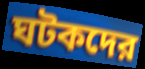
ঘটকদের